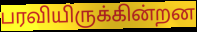
பரவியிருக்கின்றன